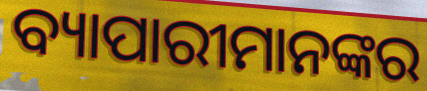
ବ୍ୟାପାରୀମାନଙ୍କର